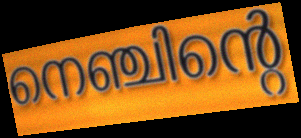
നെഞ്ചിന്റെ